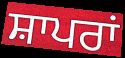
ਸ਼ਾਪਰਾਂ